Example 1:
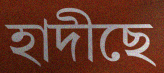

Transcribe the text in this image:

হাদীছে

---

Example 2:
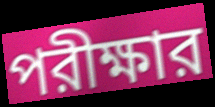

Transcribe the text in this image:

পরীক্ষার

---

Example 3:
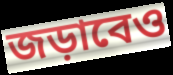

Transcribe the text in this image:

জড়াবেও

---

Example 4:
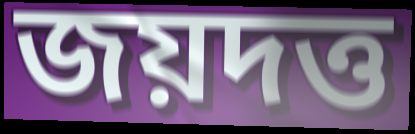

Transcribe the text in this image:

জয়দত্ত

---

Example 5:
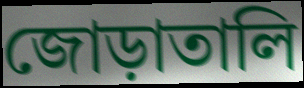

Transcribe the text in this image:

জোড়াতালি